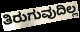
ತಿರುಗುವುದಿಲ್ಲ